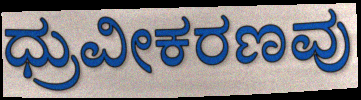
ಧ್ರುವೀಕರಣವು